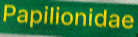
Papilionidae